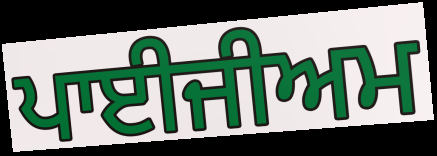
ਪਾਈਜੀਅਮ